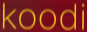
koodi